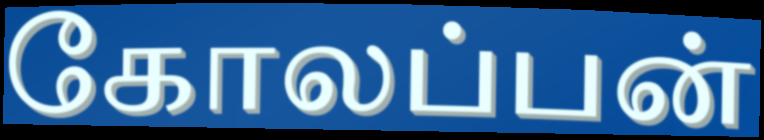
கோலப்பன்